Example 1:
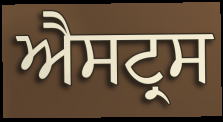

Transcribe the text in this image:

ਐਸਟ੍ਰਸ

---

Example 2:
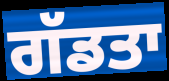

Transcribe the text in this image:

ਗੱਡਤਾ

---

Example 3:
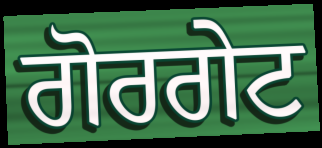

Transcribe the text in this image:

ਗੋਰਗੇਟ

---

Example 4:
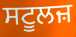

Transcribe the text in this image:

ਸਟੂਲਜ਼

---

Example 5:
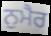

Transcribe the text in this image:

ਨੁਮੈਰ